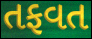
તફવત